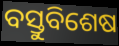
ବସ୍ତୁବିଶେଷ